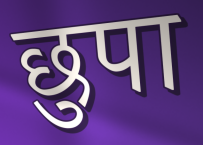
छुपा